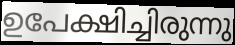
ഉപേക്ഷിച്ചിരുന്നു